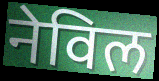
नेविल